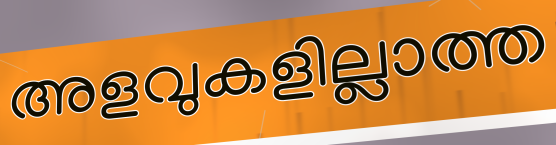
അളവുകളില്ലാത്ത